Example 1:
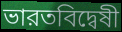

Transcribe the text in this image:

ভারতবিদ্বেষী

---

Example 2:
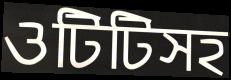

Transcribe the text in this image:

ওটিটিসহ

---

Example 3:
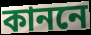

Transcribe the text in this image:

কাননে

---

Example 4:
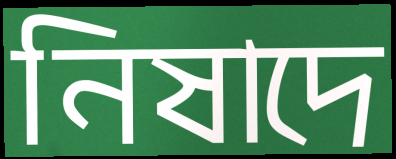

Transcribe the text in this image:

নিষাদে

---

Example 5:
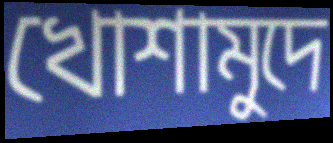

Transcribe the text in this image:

খোশামুদে